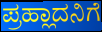
ಪ್ರಹ್ಲಾದನಿಗೆ